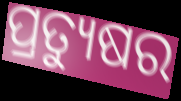
ପ୍ରତ୍ୟୁଷର